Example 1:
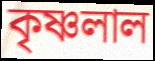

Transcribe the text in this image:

কৃষ্ণলাল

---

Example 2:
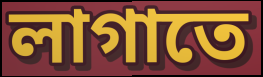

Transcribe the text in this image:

লাগাতে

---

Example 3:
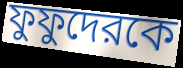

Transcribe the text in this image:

ফুফুদেরকে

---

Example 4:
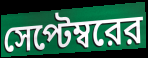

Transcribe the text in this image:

সেপ্টেম্বরের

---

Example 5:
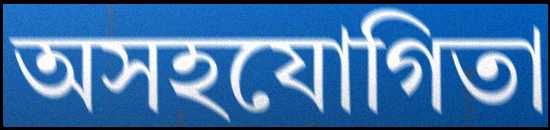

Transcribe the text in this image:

অসহযোগিতা